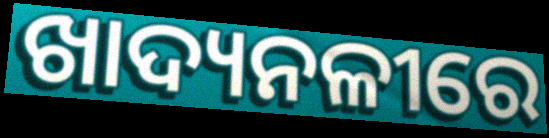
ଖାଦ୍ୟନଳୀରେ